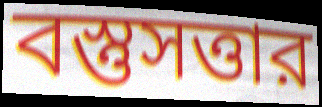
বস্তুসত্তার